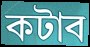
কটাব